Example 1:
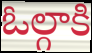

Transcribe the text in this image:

ఓల్గాకి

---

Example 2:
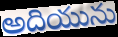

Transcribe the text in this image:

అదియును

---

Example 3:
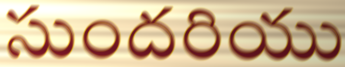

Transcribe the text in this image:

సుందరియు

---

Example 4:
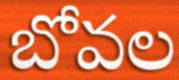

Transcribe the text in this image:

బోవల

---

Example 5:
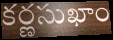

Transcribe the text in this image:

కర్ణసుఖాం